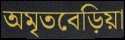
অমৃতবেড়িয়া